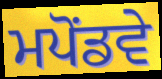
ਮਪੋਂਡਵੇ